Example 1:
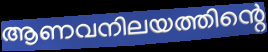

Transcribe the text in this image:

ആണവനിലയത്തിന്റെ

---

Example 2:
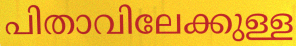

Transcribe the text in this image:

പിതാവിലേക്കുള്ള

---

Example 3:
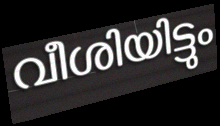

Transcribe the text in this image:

വീശിയിട്ടും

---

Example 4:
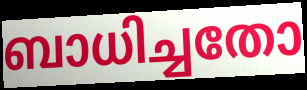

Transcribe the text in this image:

ബാധിച്ചതോ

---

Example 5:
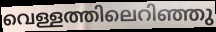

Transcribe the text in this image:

വെള്ളത്തിലെറിഞ്ഞു